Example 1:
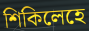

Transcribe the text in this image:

শিকিলেহে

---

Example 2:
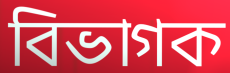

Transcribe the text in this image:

বিভাগক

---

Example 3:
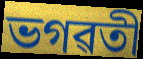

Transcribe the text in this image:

ভগৱতী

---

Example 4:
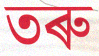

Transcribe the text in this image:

তৰু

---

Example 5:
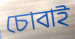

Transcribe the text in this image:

চোবাই